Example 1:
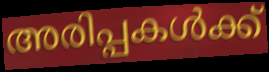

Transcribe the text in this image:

അരിപ്പകൾക്ക്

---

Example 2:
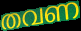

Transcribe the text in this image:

തവണ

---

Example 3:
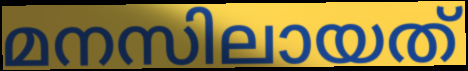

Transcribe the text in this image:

മനസിലായത്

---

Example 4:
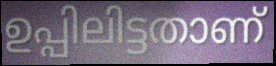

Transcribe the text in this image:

ഉപ്പിലിട്ടതാണ്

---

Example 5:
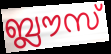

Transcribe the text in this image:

ബ്ലൗസ്